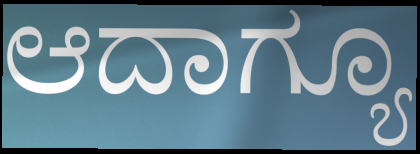
ಆದಾಗ್ಯೂ